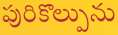
పురికొల్పును